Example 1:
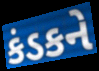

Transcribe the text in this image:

કંડકને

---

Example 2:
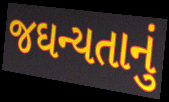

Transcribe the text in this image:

જઘન્યતાનું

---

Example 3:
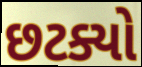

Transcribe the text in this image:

છટક્યો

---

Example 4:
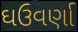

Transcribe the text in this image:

ઘઉવર્ણા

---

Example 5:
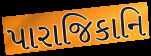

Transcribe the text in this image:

પારાજિકાનિ